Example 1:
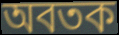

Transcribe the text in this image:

অবতক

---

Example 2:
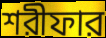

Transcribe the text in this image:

শরীফার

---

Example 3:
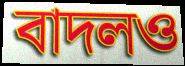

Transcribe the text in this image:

বাদলও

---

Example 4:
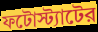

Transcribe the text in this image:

ফটোস্ট্যাটের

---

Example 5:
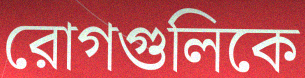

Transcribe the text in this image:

রোগগুলিকে